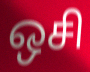
ஒசி